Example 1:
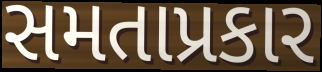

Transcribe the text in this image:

સમતાપ્રકાર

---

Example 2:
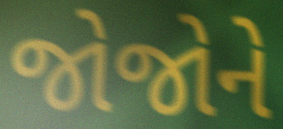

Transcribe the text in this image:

જોજોને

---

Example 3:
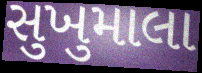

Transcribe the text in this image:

સુખુમાલા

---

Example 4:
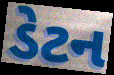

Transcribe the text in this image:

ડેટન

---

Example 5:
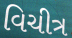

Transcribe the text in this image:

વિચીત્ર